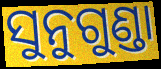
ସୁନୁଗୁଣ୍ଡା